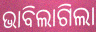
ଭାବିଲାଗିଲା